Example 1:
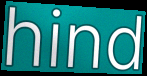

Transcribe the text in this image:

hind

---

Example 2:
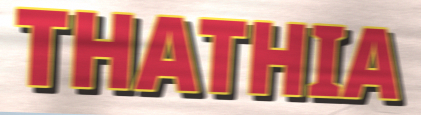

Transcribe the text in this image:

THATHIA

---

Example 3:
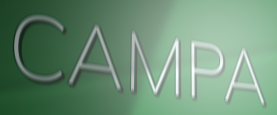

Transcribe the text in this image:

CAMPA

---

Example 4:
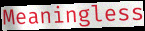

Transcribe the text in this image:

Meaningless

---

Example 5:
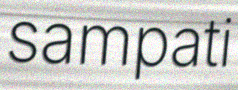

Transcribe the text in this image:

sampati